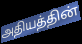
அதியத்தின்